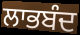
ਲਾਭਬੰਦ